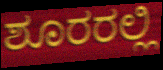
ಶೂರರಲ್ಲಿ